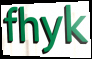
fhyk